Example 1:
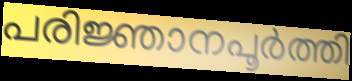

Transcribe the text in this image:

പരിജ്ഞാനപൂർത്തി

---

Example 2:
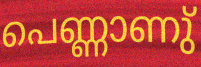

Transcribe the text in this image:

പെണ്ണാണു്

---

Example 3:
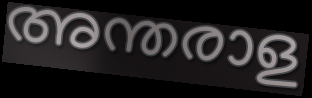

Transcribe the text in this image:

അന്തരാള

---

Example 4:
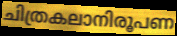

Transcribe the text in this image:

ചിത്രകലാനിരൂപണ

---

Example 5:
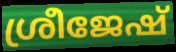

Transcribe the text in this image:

ശ്രീജേഷ്